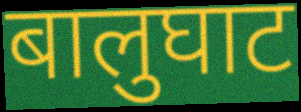
बालुघाट